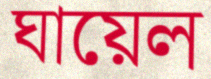
ঘায়েল